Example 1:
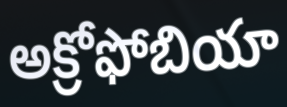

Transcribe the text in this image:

అక్రోఫోబియా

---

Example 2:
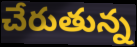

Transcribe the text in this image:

చేరుతున్న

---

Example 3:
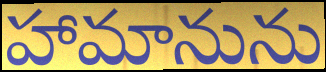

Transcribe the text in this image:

హామానును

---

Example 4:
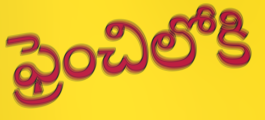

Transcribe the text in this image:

ఫ్రెంచిలోకి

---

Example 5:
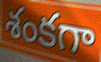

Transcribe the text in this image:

శంకగా